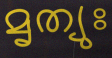
മൃത്യുഃ